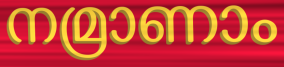
നമ്രാണാം